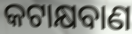
କଟାକ୍ଷବାଣ